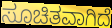
ಸೂಚಿತವಾಗಿದೆ